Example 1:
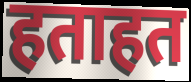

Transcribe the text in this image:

हताहत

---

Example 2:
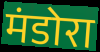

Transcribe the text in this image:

मंडोरा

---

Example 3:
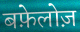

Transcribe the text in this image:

बफ़ेलोज़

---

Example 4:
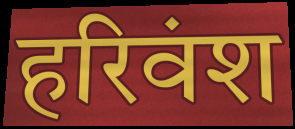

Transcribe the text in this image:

हरिवंश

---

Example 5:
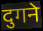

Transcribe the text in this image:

दुगने